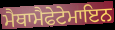
ਮੈਥਾਮੈਫੇਟੇਮਾਇਨ